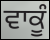
ਵਾਕੂੰ